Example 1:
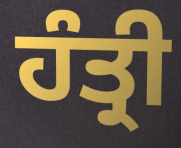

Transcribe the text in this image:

ਹੰਤ੍ਰੀ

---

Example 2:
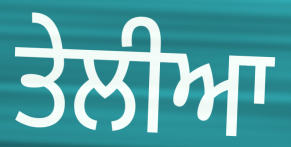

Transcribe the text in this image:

ਤੇਲੀਆ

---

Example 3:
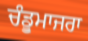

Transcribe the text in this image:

ਚੰਡੂਮਾਜਰਾ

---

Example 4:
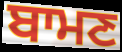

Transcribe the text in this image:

ਬਾਮਣ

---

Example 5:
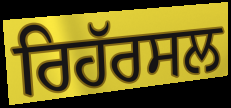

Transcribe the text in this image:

ਰਿਹੱਰਸਲ